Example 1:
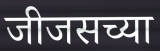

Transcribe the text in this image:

जीजसच्या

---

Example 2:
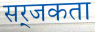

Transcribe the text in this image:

सर्जकता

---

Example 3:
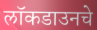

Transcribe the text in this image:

लॉकडाउनचे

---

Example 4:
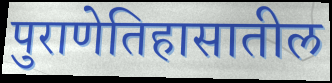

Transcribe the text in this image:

पुराणेतिहासातील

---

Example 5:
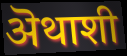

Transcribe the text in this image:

ऄथाशी